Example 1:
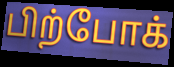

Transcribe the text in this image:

பிற்போக்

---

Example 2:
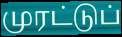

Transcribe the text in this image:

முரட்டுப்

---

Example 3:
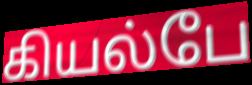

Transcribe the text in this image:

கியல்பே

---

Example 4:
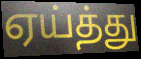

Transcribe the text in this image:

ஏய்த்து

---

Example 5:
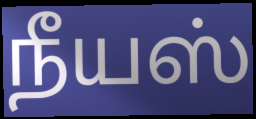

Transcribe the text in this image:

நீயஸ்